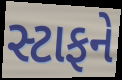
સ્ટાફને